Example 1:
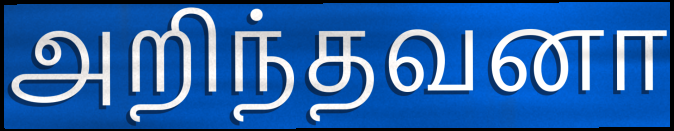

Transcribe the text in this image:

அறிந்தவனா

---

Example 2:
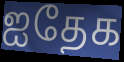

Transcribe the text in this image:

ஐதேக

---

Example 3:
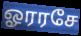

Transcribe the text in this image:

ஓரரசே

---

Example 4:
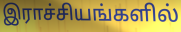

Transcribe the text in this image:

இராச்சியங்களில்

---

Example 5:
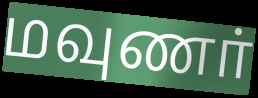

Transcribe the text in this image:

மவுணர்